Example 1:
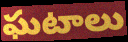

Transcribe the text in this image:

ఘటాలు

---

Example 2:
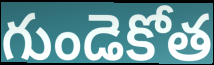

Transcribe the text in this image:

గుండెకోత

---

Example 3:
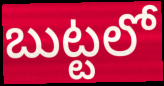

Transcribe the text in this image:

బుట్టలో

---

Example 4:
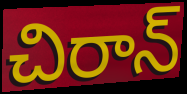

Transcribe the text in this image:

చిరాన్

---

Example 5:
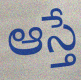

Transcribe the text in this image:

ఆస్తే